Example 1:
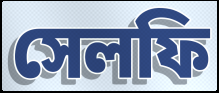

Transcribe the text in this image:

সেলফি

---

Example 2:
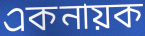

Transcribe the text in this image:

একনায়ক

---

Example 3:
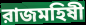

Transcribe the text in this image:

রাজমহিষী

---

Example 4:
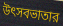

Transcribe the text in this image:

উৎসবভাতার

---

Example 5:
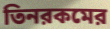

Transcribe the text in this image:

তিনরকমের